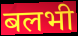
बलभी